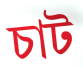
চাট